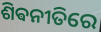
ଶିଵନୀତିରେ